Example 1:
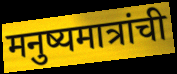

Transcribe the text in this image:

मनुष्यमात्रांची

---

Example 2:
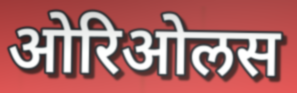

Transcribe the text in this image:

ओरिओलस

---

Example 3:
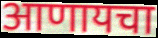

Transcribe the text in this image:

आणायचा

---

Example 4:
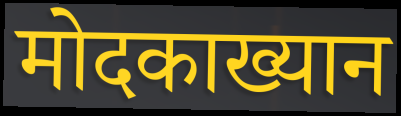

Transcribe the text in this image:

मोदकाख्यान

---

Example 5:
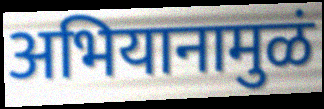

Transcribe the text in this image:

अभियानामुळं